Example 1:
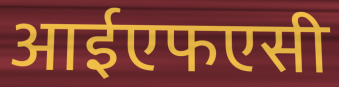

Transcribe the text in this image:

आईएफएसी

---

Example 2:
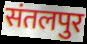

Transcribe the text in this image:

संतलपुर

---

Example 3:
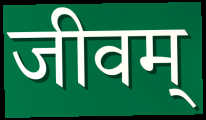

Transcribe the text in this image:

जीवम्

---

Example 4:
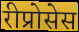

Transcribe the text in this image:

रीप्रोसेस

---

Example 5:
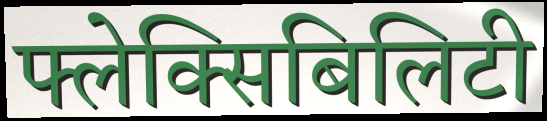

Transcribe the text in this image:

फ्लेक्सिबिलिटी